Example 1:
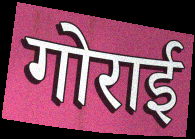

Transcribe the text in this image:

गोराई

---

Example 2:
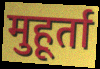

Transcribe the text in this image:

मुहूर्ता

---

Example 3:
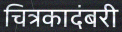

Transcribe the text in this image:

चित्रकादंबरी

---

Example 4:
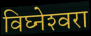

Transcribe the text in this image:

विघ्नेश्वरा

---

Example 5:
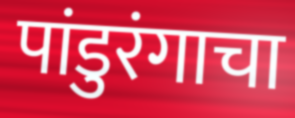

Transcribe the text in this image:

पांडुरंगाचा